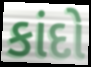
કાંદો